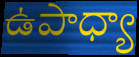
ఉపాధ్యా